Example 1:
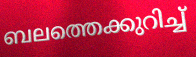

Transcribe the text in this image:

ബലത്തെക്കുറിച്ച്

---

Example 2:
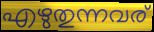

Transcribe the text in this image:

എഴുതുന്നവര്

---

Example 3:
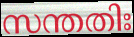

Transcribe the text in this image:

സന്തതിഃ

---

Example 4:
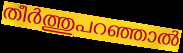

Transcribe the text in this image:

തീർത്തുപറഞ്ഞാൽ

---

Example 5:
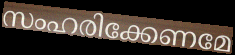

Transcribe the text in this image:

സംഹരിക്കേണമേ